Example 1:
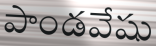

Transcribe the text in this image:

పాండవేషు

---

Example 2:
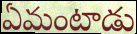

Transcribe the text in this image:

ఏమంటాడు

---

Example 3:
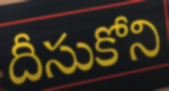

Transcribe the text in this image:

దీసుకోని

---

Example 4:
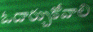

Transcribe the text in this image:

ఓదార్చుకోవాలి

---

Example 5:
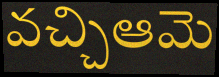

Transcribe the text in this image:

వచ్చిఆమె